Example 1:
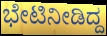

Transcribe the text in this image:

ಭೇಟಿನೀಡಿದ್ದ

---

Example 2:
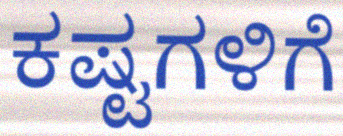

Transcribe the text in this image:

ಕಷ್ಟಗಳಿಗೆ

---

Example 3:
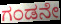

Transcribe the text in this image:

ಗಂಡನೇ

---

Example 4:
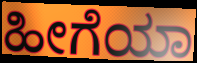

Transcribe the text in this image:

ಹೀಗೆಯಾ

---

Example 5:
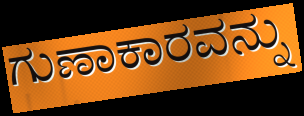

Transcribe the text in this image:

ಗುಣಾಕಾರವನ್ನು